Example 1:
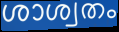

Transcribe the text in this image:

ശാശ്വതം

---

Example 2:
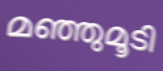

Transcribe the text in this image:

മഞ്ഞുമൂടി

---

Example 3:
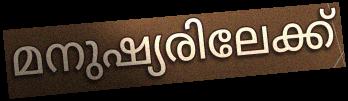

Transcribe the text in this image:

മനുഷ്യരിലേക്ക്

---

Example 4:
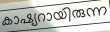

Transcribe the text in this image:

കാഷ്യറായിരുന്ന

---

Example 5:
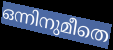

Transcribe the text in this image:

ഒന്നിനുമീതെ